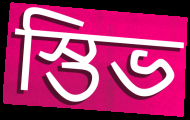
স্তিভ